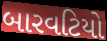
બારવટિયો